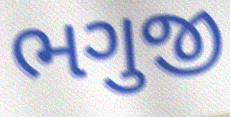
ભગુજી